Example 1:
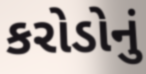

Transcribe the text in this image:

કરોડોનું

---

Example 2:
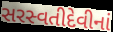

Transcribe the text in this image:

સરસ્વતીદેવીનાં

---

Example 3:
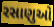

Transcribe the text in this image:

રસાણુઓ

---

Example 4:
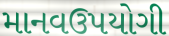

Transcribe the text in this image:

માનવઉપયોગી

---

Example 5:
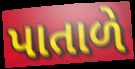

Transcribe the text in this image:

પાતાળે